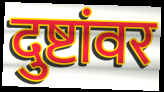
दुष्टांवर